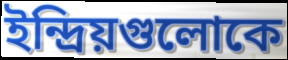
ইন্দ্রিয়গুলোকে